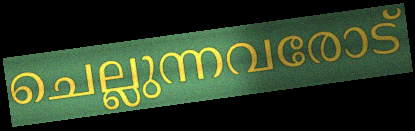
ചെല്ലുന്നവരോട്